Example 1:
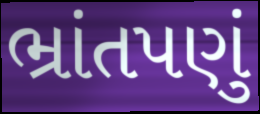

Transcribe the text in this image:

ભ્રાંતપણું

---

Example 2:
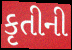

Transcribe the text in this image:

કૃતીની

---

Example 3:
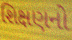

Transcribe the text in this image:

શિક્ષણનો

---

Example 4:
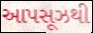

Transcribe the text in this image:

આપસૂઝથી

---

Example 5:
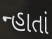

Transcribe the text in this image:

ન્હાતાં